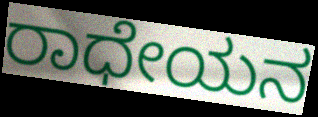
ರಾಧೇಯನ